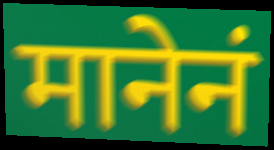
मानेनं